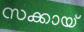
സക്കായ്